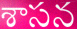
శాసన